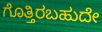
ಗೊತ್ತಿರಬಹುದೇ